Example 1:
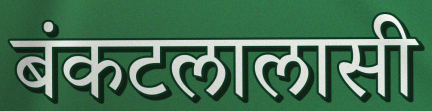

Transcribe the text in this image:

बंकटलालासी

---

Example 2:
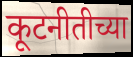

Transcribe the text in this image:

कूटनीतीच्या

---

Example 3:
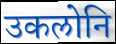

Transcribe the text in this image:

उकलोनि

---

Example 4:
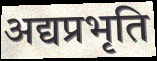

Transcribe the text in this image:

अद्यप्रभृति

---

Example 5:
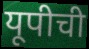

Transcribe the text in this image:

यूपीची